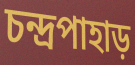
চন্দ্রপাহাড়